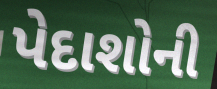
પેદાશોની